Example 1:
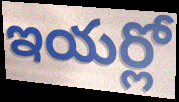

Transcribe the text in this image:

ఇయర్లో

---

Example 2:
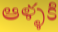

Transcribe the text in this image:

ఆళ్ళకి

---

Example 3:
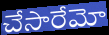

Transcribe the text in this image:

చేసారేమో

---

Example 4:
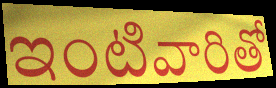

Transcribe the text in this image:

ఇంటివారితో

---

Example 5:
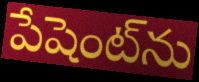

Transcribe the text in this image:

పేషెంట్‌ను